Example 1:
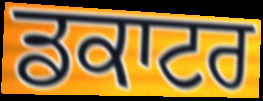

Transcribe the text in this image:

ਡਕਾਟਰ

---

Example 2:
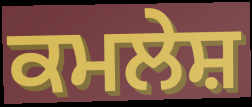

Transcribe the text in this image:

ਕਮਲੇਸ਼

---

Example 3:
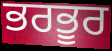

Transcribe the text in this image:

ਭਰਭੂਰ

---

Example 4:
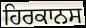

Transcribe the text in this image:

ਹਿਰਕਾਨਸ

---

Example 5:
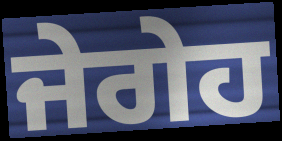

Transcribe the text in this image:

ਜੇਗੇਹ